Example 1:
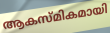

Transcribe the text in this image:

ആകസ്മികമായി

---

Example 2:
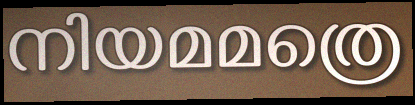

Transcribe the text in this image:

നിയമമത്രെ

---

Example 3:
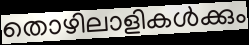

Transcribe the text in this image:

തൊഴിലാളികൾക്കും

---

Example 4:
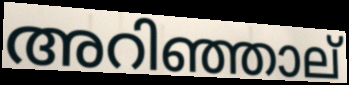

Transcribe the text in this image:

അറിഞ്ഞാല്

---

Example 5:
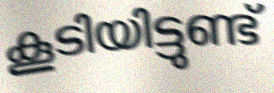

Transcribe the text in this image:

കൂടിയിട്ടുണ്ട്